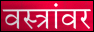
वस्त्रांवर